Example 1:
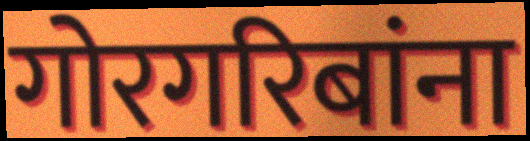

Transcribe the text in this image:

गोरगरिबांना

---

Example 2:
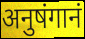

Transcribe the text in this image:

अनुषंगानं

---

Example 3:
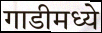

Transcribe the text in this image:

गाडीमध्ये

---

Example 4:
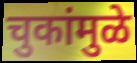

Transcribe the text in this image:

चुकांमुळे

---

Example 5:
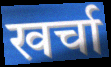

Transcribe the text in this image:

खर्चा